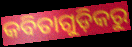
କବିତାଗୁଡ଼ିକରୁ